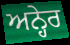
ਅਨ੍ਹੇਰ